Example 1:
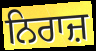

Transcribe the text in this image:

ਨਿਰਾਜ਼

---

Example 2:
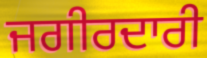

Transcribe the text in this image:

ਜਗੀਰਦਾਰੀ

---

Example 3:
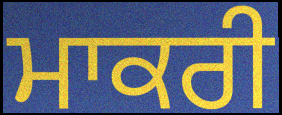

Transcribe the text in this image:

ਮਾਕਰੀ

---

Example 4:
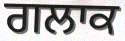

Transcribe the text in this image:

ਗਲਾਕ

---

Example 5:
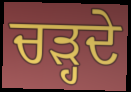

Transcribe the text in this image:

ਚਡ਼੍ਹਦੇ